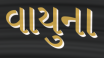
વાયુના